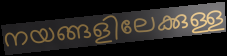
നയങ്ങളിലേക്കുള്ള